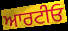
ਆਰਟੀਓ